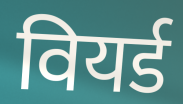
वियर्ड